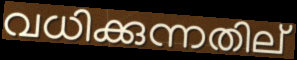
വധിക്കുന്നതില്